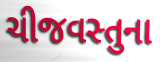
ચીજવસ્તુના